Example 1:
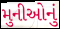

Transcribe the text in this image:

મુનીઓનું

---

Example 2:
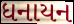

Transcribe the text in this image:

ધનાયન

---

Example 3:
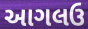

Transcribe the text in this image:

આગલઉ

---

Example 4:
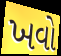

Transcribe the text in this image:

ખવો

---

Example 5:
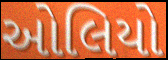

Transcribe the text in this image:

ઓલિયો